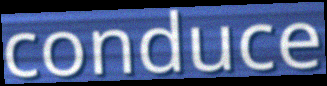
conduce